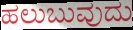
ಹಲುಬುವುದು